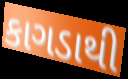
કાગડાથી